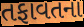
તફાવતના